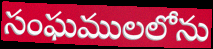
సంఘములలోను